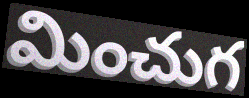
మించుగ